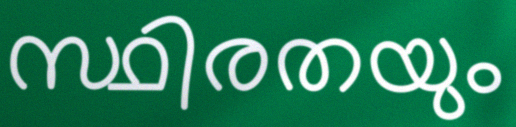
സ്ഥിരതയും